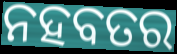
ନହବତର